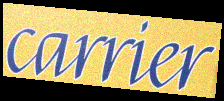
carrier